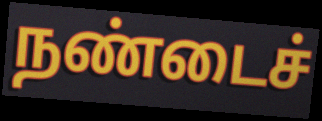
நண்டைச்